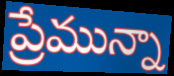
ప్రేమున్నా